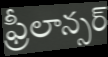
ఫ్రీలాన్సర్